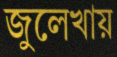
জুলেখায়